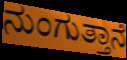
ನುಂಗುತ್ತಾನೆ